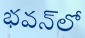
భవన్‌లో